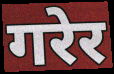
गरेर